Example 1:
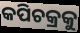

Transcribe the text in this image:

କପିଚକ୍ରକୁ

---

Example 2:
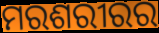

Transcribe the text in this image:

ମରଶରୀରର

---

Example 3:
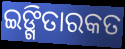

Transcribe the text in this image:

ଇଙ୍ଗିତାରକତ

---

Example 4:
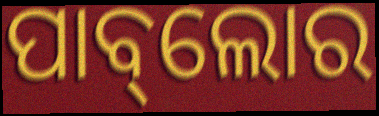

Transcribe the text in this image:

ପାବ୍‌ଲୋର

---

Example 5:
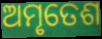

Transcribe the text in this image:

ଅମୃତେଶ